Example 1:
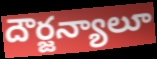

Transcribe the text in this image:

దౌర్జన్యాలూ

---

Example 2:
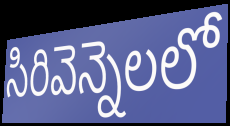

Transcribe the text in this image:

సిరివెన్నెలలో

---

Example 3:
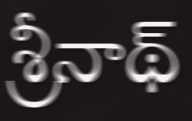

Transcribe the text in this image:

శ్రీనాథ్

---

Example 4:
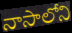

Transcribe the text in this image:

నాసాలోని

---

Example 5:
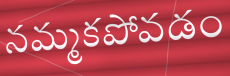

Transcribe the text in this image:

నమ్మకపోవడం